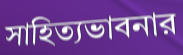
সাহিত্যভাবনার